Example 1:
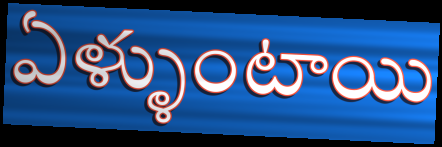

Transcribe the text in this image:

ఏళ్ళుంటాయి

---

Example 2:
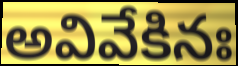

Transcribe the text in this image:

అవివేకినః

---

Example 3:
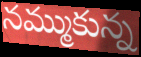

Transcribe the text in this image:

నమ్ముకున్న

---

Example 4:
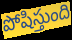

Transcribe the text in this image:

పోషిస్తుంది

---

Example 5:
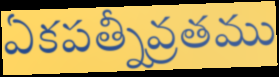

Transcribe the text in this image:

ఏకపత్నీవ్రతము